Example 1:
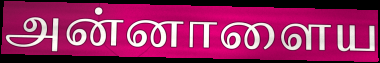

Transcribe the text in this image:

அன்னாளைய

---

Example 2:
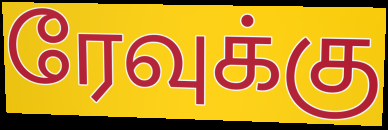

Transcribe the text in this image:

ரேவுக்கு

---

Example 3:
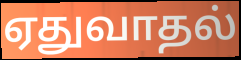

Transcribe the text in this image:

ஏதுவாதல்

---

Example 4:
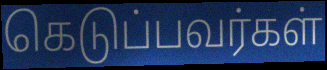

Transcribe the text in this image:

கெடுப்பவர்கள்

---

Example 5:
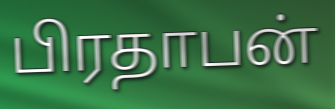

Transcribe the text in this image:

பிரதாபன்